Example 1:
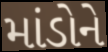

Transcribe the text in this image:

માંડોને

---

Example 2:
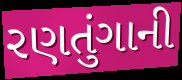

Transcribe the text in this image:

રણતુંગાની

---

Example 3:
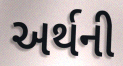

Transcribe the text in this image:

અર્થની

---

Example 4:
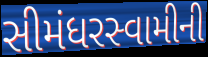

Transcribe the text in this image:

સીમંધરસ્વામીની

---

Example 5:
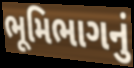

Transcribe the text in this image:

ભૂમિભાગનું